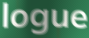
logue